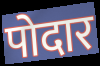
पोदार